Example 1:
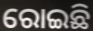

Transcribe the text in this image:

ରୋଇଛି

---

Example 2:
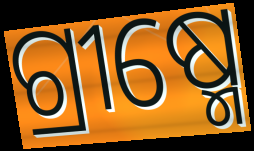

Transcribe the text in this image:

ଗ୍ରୀଷ୍ମେ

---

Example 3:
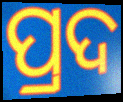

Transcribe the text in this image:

ପ୍ରଦ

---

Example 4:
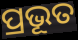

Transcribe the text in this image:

ପ୍ରଭୂତ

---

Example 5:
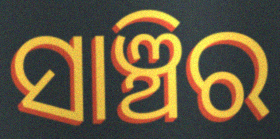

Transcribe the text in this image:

ସାଞ୍ଚିର